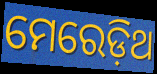
ମେରେଡ଼ିଥ